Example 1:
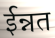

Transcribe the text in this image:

ईन्नत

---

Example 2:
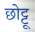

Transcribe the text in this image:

छोट्टू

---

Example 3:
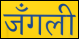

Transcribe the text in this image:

जँगली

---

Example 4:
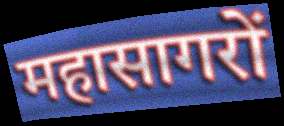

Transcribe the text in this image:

महासागरों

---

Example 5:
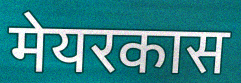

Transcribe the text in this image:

मेयरकास